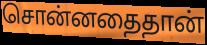
சொன்னதைதான்